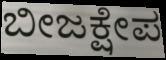
ಬೀಜಕ್ಷೇಪ